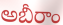
అబీరాం